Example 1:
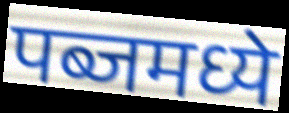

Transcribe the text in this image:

पब्जमध्ये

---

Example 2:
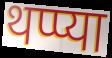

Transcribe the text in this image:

थप्प्या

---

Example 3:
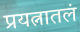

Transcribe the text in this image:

प्रयत्नातलं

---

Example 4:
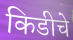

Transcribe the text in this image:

किडीचे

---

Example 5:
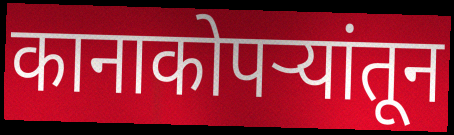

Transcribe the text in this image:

कानाकोपर्‍यांतून